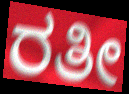
ರತೀ